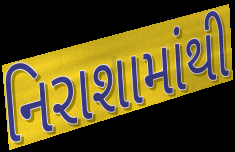
નિરાશામાંથી